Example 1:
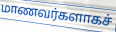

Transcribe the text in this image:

மாணவர்களாகச்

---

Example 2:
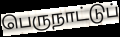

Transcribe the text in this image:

பெருநாட்டுப்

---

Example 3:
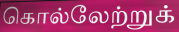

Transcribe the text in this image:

கொல்லேற்றுக்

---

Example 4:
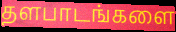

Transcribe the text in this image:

தளபாடங்களை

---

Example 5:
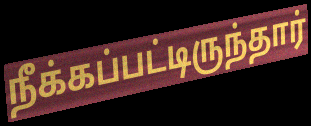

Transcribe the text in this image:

நீக்கப்பட்டிருந்தார்